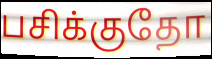
பசிக்குதோ